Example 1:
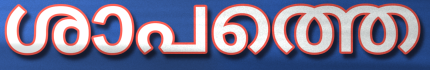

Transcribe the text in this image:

ശാപത്തെ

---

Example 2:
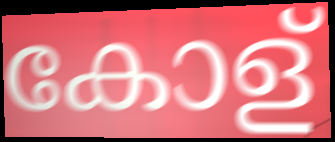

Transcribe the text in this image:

കോള്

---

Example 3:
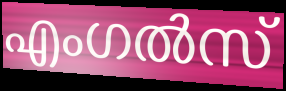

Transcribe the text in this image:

എംഗൽസ്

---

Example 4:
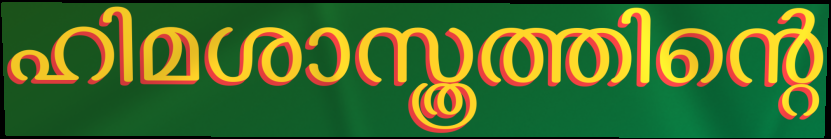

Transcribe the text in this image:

ഹിമശാസ്ത്രത്തിന്റെ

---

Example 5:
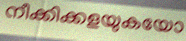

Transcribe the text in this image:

നീക്കിക്കളയുകയോ